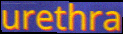
urethra